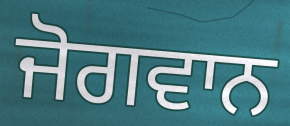
ਜੋਗਵਾਨ